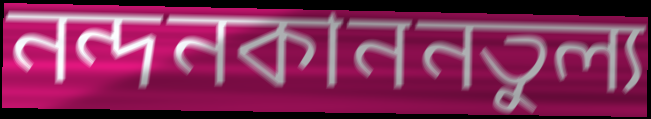
নন্দনকাননতুল্য